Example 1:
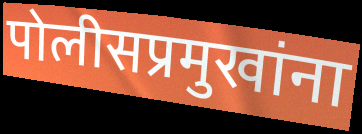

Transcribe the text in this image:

पोलीसप्रमुखांना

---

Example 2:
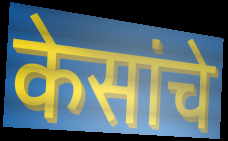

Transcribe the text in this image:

केसांचे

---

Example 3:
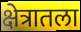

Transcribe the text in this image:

क्षेत्रातला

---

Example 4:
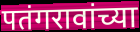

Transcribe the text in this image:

पतंगरावांच्या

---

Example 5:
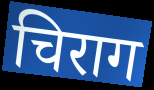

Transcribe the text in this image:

चिराग